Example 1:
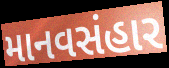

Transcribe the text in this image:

માનવસંહાર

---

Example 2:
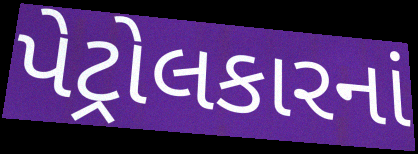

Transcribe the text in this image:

પેટ્રોલકારનાં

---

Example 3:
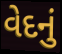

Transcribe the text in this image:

વેદનું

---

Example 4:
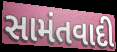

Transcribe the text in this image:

સામંતવાદી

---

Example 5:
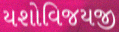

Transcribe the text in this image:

યશોવિજયજી